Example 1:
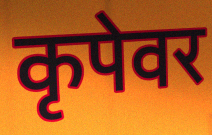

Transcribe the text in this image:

कृपेवर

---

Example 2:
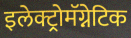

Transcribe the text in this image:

इलेक्ट्रोमॅग्नेटिक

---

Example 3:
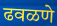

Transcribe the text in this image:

ढवळणे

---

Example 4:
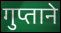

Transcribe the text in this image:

गुप्ताने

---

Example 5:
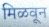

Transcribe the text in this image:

मिळवून